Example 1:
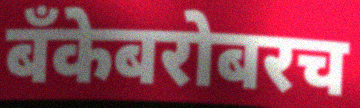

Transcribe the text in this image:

बँकेबरोबरच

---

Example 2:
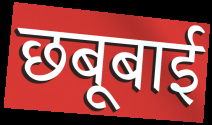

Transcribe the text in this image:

छबूबाई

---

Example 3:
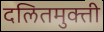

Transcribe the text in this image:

दलितमुक्ती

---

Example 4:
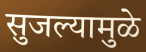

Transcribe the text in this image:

सुजल्यामुळे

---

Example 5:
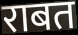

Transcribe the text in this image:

राबत